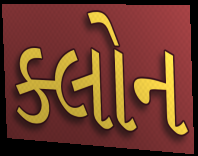
ક્લોન